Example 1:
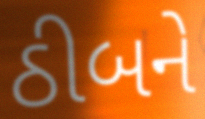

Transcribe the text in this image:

ઠીબને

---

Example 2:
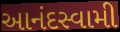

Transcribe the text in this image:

આનંદસ્વામી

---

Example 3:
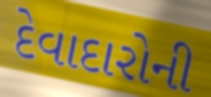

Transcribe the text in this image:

દેવાદારોની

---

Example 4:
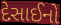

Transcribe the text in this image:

દેસાઈનો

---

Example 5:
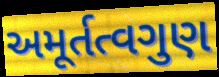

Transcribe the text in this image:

અમૂર્તત્વગુણ